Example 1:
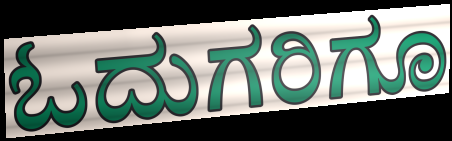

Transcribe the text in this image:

ಓದುಗರಿಗೂ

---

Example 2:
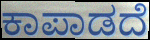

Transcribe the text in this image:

ಕಾಪಾಡದೆ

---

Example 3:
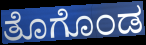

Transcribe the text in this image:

ತೊಗೊಂಡ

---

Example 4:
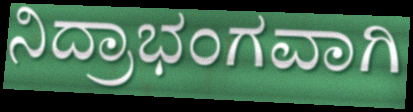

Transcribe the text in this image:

ನಿದ್ರಾಭಂಗವಾಗಿ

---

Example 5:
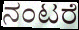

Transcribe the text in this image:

ನಂಟರೆ